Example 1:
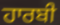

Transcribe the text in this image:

ਹਾਰਬੀ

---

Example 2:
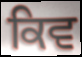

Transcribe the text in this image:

ਕਿਵ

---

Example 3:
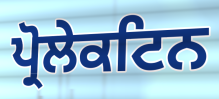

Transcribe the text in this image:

ਪ੍ਰੋਲੇਕਟਿਨ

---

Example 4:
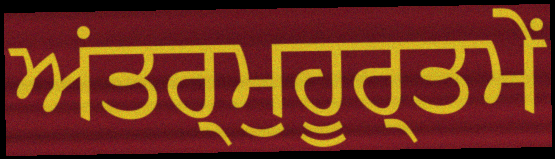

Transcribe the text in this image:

ਅਂਤਰ੍ਮੁਹੂਰ੍ਤਮੇਂ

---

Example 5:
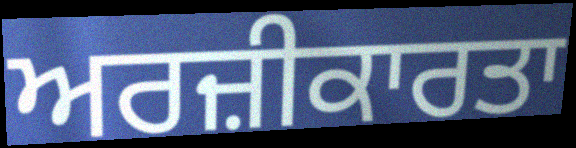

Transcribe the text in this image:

ਅਰਜ਼ੀਕਾਰਤਾ